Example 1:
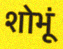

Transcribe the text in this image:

शोभूं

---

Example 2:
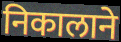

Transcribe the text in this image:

निकालाने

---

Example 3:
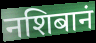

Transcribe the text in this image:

नशिबानं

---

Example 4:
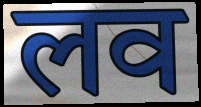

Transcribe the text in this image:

लव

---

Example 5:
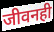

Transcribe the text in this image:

जीवनही